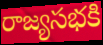
రాజ్యసభకి